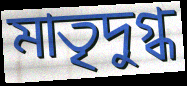
মাতৃদুগ্ধ